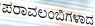
ಪರಾವಲಂಬಿಗಳಾದ